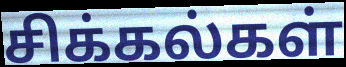
சிக்கல்கள்